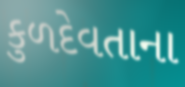
કુળદેવતાના